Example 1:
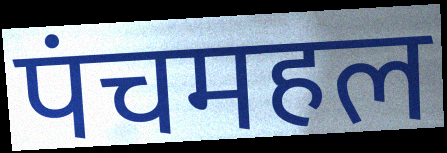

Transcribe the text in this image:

पंचमहल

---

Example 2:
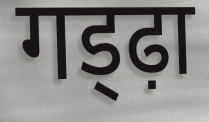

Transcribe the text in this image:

गड्ढ़ा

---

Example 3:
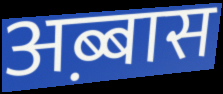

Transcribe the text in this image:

अ़ब्बास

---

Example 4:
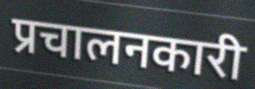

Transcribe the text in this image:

प्रचालनकारी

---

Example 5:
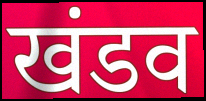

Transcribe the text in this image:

खंडव